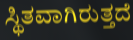
ಸ್ಥಿತವಾಗಿರುತ್ತದೆ